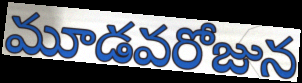
మూడవరోజున